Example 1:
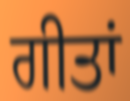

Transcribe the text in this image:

ਗੀਤਾਂ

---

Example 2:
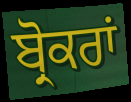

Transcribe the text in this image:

ਬ੍ਰੋਕਰਾਂ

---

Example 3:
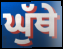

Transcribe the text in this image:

ਘੁੱਥੇ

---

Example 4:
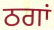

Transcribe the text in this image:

ਠਗਾਂ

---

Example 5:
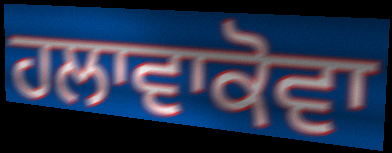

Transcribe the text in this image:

ਹਲਾਵਾਕੋਵਾ